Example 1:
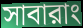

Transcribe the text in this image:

সাবারাং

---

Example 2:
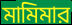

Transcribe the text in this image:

মামিমার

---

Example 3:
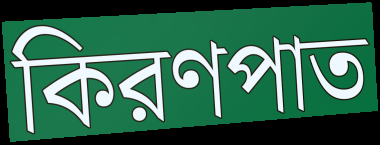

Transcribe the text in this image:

কিরণপাত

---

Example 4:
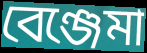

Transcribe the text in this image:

বেঞ্জেমা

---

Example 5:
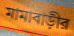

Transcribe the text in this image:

মামাবাড়ীর